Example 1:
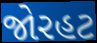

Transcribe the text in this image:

જોરહટ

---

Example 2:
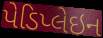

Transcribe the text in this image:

પેડિપ્લેઇન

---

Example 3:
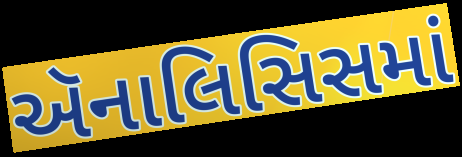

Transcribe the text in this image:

ઍનાલિસિસમાં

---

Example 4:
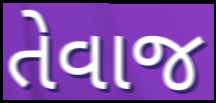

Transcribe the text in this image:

તેવાજ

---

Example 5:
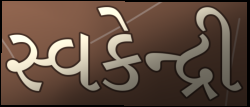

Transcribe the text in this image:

સ્વકેન્દ્રી